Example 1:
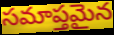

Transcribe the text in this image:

సమాప్తమైన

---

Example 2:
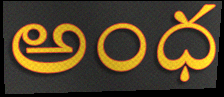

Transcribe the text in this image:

అంధ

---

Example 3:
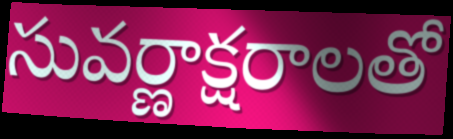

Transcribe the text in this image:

సువర్ణాక్షరాలతో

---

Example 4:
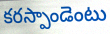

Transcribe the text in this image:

కరస్పాండెంటు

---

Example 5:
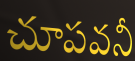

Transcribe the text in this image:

చూపవనీ